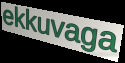
ekkuvaga